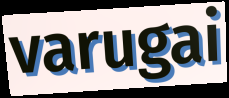
varugai